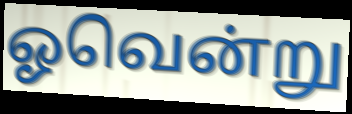
ஓவென்று